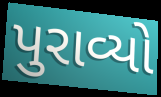
પુરાવ્યો